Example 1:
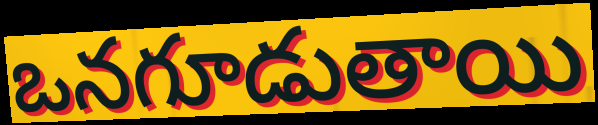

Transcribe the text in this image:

ఒనగూడుతాయి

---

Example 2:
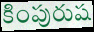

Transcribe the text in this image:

కింపురుష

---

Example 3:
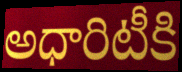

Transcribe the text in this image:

అధారిటీకి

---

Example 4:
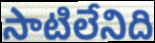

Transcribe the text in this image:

సాటిలేనిది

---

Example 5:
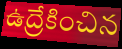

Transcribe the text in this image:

ఉద్రేకించిన